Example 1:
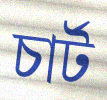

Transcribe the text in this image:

চার্ট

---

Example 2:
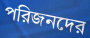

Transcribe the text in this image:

পরিজনদের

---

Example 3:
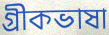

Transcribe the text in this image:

গ্রীকভাষা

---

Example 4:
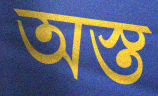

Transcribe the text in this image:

অস্ত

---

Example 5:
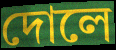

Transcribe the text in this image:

দোলে